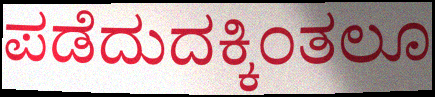
ಪಡೆದುದಕ್ಕಿಂತಲೂ